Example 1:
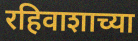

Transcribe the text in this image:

रहिवाशाच्या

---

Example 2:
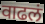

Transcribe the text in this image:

वाढलं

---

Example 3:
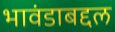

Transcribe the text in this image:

भावंडाबद्दल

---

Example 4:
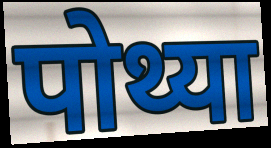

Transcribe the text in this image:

पोथ्या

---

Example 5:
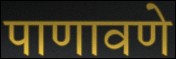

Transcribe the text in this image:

पाणावणे